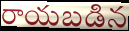
రాయబడిన